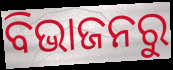
ବିଭାଜନରୁ